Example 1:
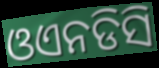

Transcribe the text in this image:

ଓଏନଡିସି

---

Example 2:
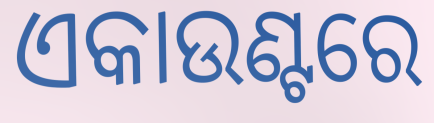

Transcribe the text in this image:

ଏକାଉଣ୍ଟରେ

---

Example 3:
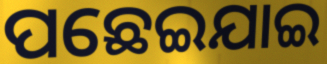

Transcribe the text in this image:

ପଛେଇଯାଇ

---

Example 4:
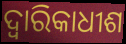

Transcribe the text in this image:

ଦ୍ୱାରିକାଧୀଶ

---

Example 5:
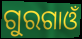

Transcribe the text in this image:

ଗୁରଗାଓଁ